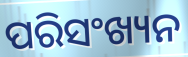
ପରିସଂଖ୍ୟନ